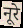
नूरे